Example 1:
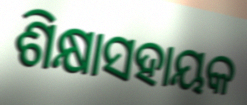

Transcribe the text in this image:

ଶିକ୍ଷାସହାୟକ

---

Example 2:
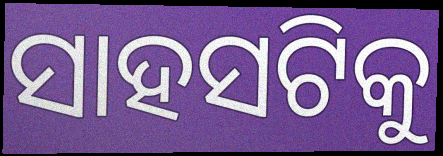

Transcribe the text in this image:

ସାହସଟିକୁ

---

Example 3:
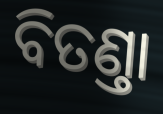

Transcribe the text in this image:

ବିତଣ୍ତା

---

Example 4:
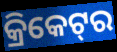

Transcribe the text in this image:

କ୍ରିକେଟ୍‌ର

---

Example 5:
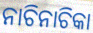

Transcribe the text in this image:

ନାଚିନାଚିକା